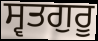
ਸ੍ਵਤਗੁਰੂ